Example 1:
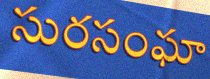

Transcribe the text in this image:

సురసంఘా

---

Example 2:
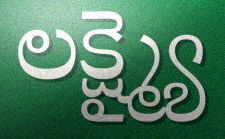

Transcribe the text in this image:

లక్ష్మ్యై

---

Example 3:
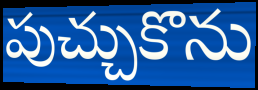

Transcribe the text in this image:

పుచ్చుకొను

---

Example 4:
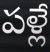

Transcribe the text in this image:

పళ్లే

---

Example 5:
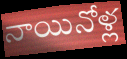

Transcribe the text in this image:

నాయినోళ్ల